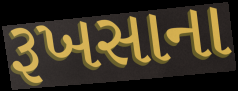
રૂખસાના